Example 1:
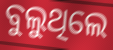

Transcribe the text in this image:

ବୁଲୁଥିଲେ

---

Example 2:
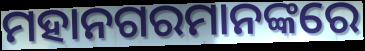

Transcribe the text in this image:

ମହାନଗରମାନଙ୍କରେ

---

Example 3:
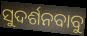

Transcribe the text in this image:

ସୁଦର୍ଶନବାବୁ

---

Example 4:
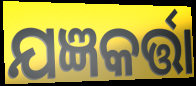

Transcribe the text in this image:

ଯଜ୍ଞକର୍ତ୍ତା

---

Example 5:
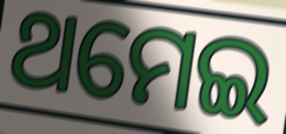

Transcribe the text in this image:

ଥମେଇ